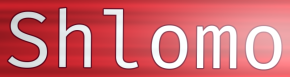
Shlomo